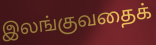
இலங்குவதைக்